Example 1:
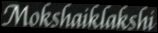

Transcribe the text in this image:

Mokshaiklakshi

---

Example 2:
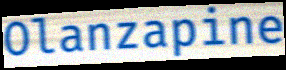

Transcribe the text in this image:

Olanzapine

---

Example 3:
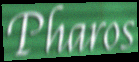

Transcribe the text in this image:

Pharos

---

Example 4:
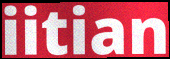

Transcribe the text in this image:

iitian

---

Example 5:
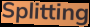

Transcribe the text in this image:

Splitting